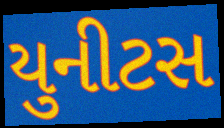
યુનીટસ